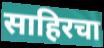
साहिरचा